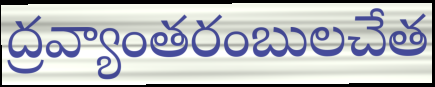
ద్రవ్యాంతరంబులచేత